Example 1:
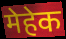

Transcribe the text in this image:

मेहेक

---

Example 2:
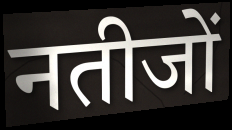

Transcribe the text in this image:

नतीजों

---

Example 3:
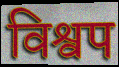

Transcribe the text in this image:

विश्वप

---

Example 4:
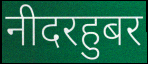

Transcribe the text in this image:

नीदरहुबर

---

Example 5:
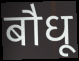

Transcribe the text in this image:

बौधू